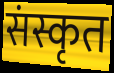
संस्‍कृत